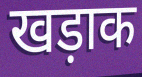
खड़ाक